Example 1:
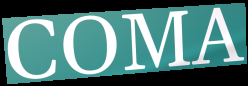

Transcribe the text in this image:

COMA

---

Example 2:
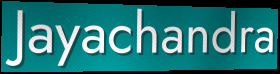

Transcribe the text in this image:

Jayachandra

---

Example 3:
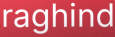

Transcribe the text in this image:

raghind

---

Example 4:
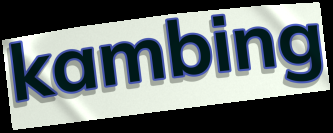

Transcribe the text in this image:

kambing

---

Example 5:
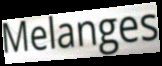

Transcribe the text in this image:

Melanges